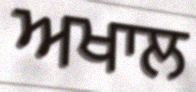
ਅਖਾਲ